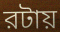
রটায়